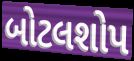
બોટલશોપ